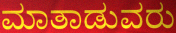
ಮಾತಾಡುವರು